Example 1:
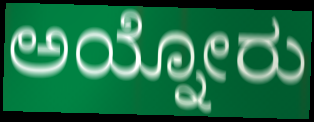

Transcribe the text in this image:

ಅಯ್ನೋರು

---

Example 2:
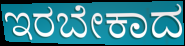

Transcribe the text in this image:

ಇರಬೇಕಾದ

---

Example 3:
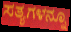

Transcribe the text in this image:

ಸತ್ಯಗಳನ್ನೂ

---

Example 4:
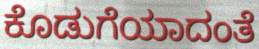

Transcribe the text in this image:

ಕೊಡುಗೆಯಾದಂತೆ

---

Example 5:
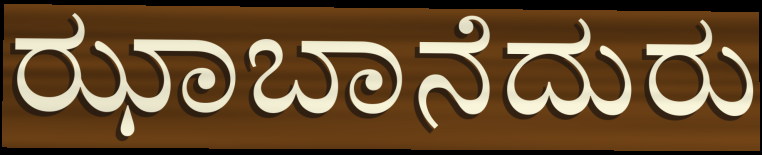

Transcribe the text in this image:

ಝಾಬಾನೆದುರು